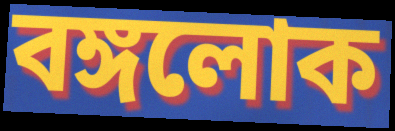
বঙ্গলোক